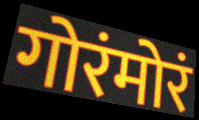
गोरंमोरं